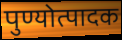
पुण्योत्पादक